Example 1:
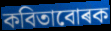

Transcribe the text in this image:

কবিতাবোৰক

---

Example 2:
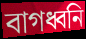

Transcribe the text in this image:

বাগধ্বনি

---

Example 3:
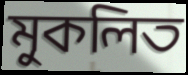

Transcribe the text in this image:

মুকলিত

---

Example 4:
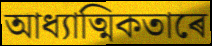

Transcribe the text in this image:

আধ্যাত্মিকতাৰে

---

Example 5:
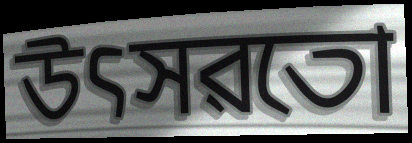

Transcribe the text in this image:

উৎসৱতো